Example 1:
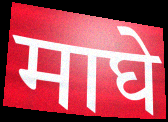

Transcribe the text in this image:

माघे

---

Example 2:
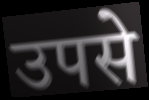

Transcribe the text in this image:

उपसे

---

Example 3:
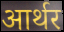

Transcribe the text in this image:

आर्थर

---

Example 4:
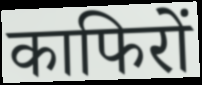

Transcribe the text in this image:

काफिरों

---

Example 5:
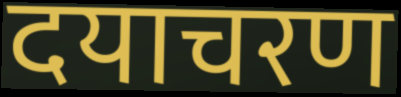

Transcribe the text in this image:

दयाचरण